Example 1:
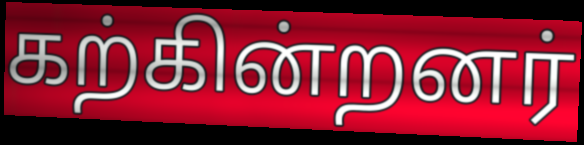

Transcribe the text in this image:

கற்கின்றனர்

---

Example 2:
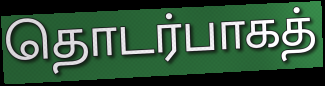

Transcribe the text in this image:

தொடர்பாகத்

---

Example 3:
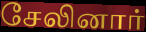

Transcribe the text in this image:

சேலினார்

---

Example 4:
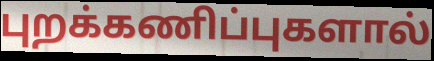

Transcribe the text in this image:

புறக்கணிப்புகளால்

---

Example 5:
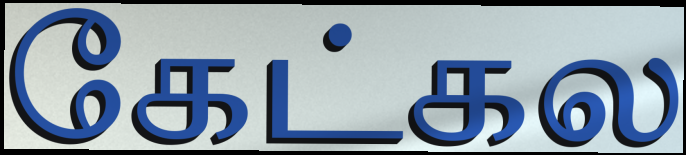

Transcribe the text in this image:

கேட்கல